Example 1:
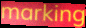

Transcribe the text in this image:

marking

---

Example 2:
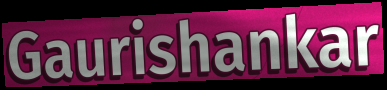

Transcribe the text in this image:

Gaurishankar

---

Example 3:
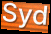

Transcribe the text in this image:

Syd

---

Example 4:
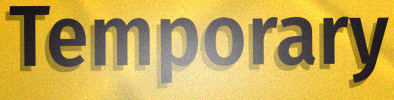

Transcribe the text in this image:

Temporary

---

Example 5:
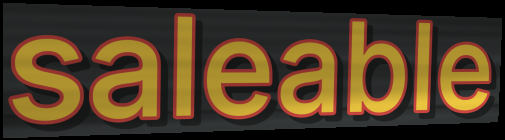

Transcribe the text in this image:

saleable